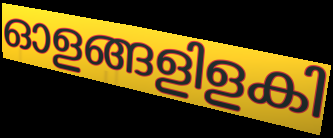
ഓളങ്ങളിളകി